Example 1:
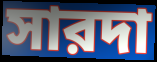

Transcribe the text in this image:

সারদা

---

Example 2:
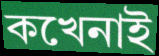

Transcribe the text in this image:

কখেনাই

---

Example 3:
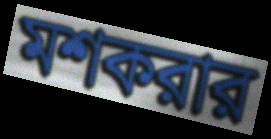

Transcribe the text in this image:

মশকরার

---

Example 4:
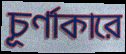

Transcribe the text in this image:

চূর্ণাকারে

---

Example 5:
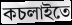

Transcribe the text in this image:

কচলাইতে